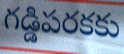
గడ్డిపరకకు